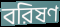
বরিষণ